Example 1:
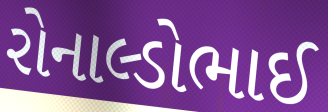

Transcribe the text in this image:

રોનાલ્ડોભાઈ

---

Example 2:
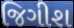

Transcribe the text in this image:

જિગીશ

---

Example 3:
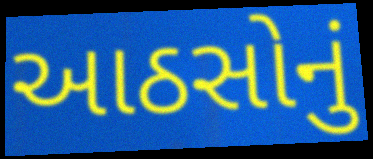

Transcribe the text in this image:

આઠસોનું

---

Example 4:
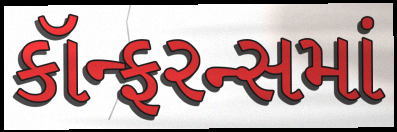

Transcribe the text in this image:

કૉન્ફરન્સમાં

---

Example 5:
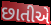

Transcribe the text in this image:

છાતીએ